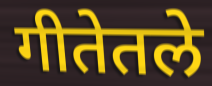
गीतेतले